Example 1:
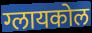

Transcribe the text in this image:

ग्लायकोल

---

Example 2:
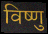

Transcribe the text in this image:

विष्णु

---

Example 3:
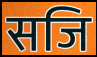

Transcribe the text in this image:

सजि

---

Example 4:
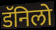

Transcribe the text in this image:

डॅनिलो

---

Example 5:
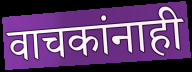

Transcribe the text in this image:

वाचकांनाही